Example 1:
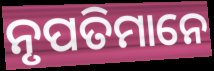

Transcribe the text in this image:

ନୃପତିମାନେ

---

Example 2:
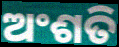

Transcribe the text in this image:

ଅଂଶତି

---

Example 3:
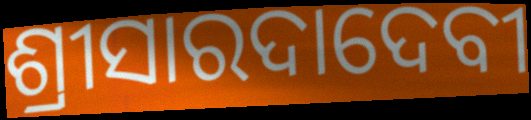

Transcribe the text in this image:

ଶ୍ରୀସାରଦାଦେବୀ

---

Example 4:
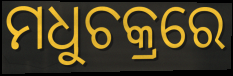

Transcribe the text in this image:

ମଧୁଚକ୍ରରେ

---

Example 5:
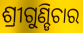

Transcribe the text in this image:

ଶ୍ରୀଗୁଣ୍ଡିଚାର